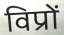
विप्रों